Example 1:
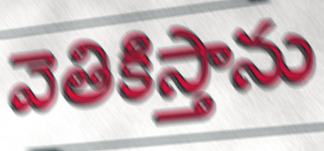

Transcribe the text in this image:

వెతికిస్తాను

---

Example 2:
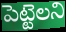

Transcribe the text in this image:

పెట్టెలని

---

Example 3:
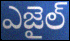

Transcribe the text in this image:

ఎజైల్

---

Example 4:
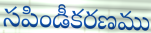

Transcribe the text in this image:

సపిండీకరణము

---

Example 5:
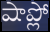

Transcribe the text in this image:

షాప్లో